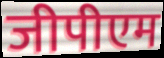
जीपीएम